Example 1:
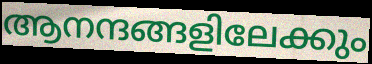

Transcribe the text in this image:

ആനന്ദങ്ങളിലേക്കും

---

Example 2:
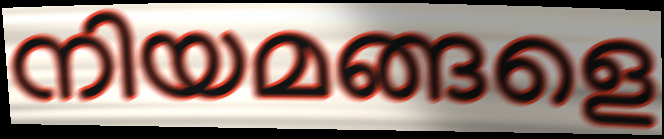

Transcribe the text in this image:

നിയമങ്ങളെ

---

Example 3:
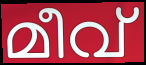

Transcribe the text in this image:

മീവ്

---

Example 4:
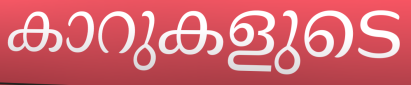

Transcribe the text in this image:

കാറുകളുടെ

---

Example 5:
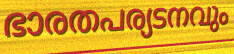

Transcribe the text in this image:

ഭാരതപര്യടനവും